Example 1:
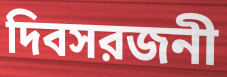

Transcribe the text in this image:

দিবসরজনী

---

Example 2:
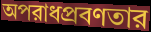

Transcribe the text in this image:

অপরাধপ্রবণতার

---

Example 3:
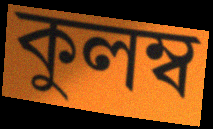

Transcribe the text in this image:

কুলম্ব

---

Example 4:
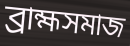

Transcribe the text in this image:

ব্রাহ্মসমাজ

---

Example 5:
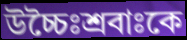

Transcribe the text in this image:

উচ্চৈঃশ্রবাঃকে